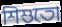
শিশুতো